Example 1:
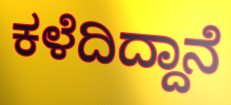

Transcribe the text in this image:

ಕಳೆದಿದ್ದಾನೆ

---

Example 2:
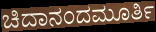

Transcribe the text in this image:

ಚಿದಾನಂದಮೂರ್ತಿ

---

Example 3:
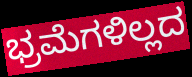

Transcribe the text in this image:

ಭ್ರಮೆಗಳಿಲ್ಲದ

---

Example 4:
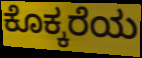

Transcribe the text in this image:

ಕೊಕ್ಕರೆಯ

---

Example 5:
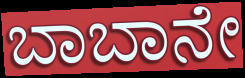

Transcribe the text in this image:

ಬಾಬಾನೇ